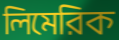
লিমেরিক